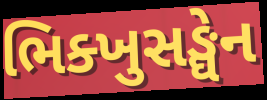
ભિક્ખુસઙ્ઘેન